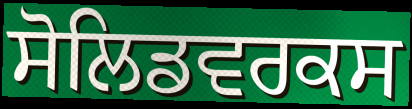
ਸੋਲਿਡਵਰਕਸ